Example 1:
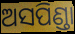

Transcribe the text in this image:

ଅସପିଣ୍ଡା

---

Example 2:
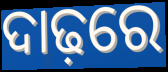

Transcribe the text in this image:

ଦାଢ଼ରେ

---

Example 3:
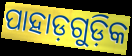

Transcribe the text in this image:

ପାହାଡ଼ଗୁଡ଼ିକ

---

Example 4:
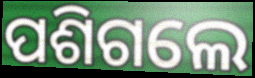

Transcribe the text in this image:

ପଶିଗଲେ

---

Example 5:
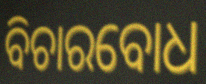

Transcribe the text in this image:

ବିଚାରବୋଧ